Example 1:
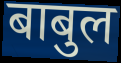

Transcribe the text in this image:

बाबुल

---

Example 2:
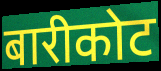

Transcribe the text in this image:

बारीकोट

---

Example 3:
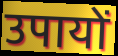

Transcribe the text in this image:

उपायों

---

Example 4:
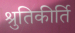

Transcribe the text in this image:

श्रुतिकीर्ति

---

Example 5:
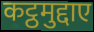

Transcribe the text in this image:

कट्ठमुद्दाए